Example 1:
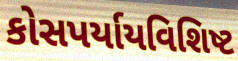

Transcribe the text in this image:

કોસપર્યાયવિશિષ્ટ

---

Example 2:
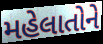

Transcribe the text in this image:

મહેલાતોને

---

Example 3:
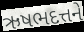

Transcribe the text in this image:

ઋષભદત્તને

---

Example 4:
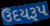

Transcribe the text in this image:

ઉદયરૂપ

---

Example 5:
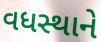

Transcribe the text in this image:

વધસ્થાને